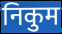
निकुम